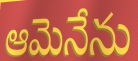
ఆమెనేను